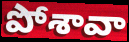
పోశావా